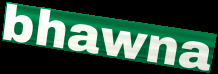
bhawna